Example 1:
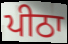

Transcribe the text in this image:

ਪੀਠਾ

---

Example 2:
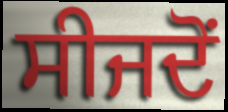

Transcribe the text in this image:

ਸੀਜਦੋਂ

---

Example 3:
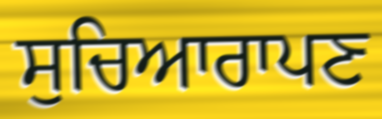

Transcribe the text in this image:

ਸੁਚਿਆਰਾਪਣ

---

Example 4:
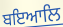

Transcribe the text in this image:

ਬਇਆਲਿ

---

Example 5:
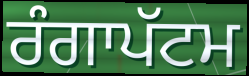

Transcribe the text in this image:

ਰੰਗਾਪੱਟਮ